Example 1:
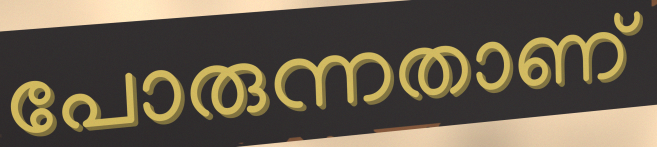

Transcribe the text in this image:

പോരുന്നതാണ്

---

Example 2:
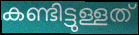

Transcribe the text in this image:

കണ്ടിട്ടുള്ളത്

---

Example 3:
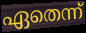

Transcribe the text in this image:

ഏതെന്ന്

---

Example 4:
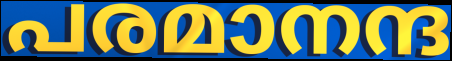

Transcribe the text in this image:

പരമാനന്ദ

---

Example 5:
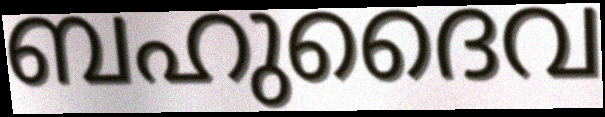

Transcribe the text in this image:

ബഹുദൈവ